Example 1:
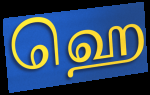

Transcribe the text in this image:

ஹெ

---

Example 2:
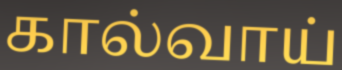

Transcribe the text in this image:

கால்வாய்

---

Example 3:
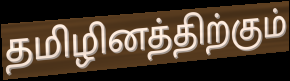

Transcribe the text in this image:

தமிழினத்திற்கும்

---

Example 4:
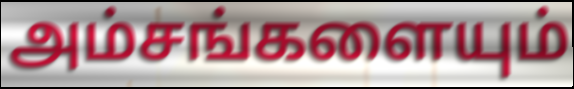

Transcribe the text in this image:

அம்சங்களையும்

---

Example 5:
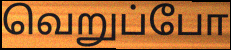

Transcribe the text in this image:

வெறுப்போ